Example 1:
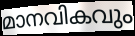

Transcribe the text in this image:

മാനവികവും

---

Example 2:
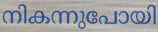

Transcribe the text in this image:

നികന്നുപോയി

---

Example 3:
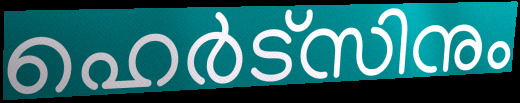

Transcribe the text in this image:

ഹെർട്സിനും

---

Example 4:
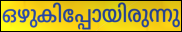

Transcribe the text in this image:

ഒഴുകിപ്പോയിരുന്നു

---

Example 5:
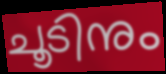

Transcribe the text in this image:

ചൂടിനും